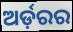
ଅର୍ଡ଼ରର